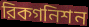
রিকগনিশন